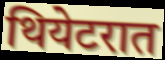
थियेटरात